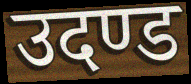
उदण्ड